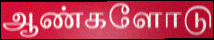
ஆண்களோடு